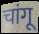
चांगू